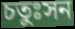
চতুঃসন